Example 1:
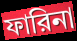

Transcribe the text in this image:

ফারিনা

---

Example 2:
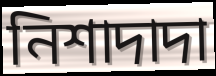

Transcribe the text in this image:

নিশাদাদা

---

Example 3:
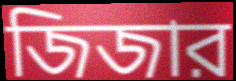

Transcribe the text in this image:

জিজার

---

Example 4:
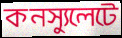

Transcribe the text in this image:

কনস্যুলেটে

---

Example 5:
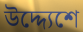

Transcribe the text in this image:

উদ্দ্যেশে